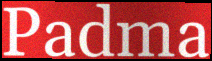
Padma